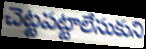
చెట్టపట్టాలేసుకుని